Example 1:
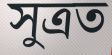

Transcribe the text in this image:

সুত্ৰত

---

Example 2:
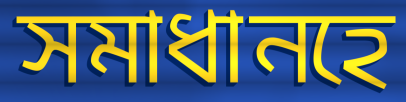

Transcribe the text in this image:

সমাধানহে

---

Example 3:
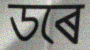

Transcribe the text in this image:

ডৰে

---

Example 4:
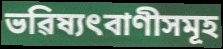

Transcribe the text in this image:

ভৱিষ্যৎবাণীসমূহ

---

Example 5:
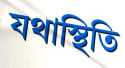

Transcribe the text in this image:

যথাস্থিতি